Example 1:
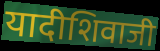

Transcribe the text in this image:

यादीशिवाजी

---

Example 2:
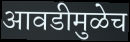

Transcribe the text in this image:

आवडीमुळेच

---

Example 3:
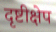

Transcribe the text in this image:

दृष्टीक्षेप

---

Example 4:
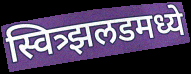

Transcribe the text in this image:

स्वित्र्झलडमध्ये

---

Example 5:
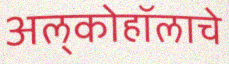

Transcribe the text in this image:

अल्कोहॉलाचे